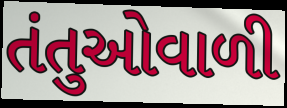
તંતુઓવાળી